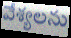
వేశ్యలను